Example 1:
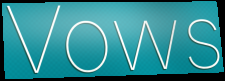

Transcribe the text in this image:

Vows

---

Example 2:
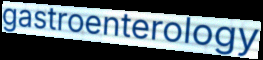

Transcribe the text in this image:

gastroenterology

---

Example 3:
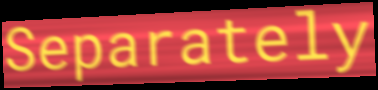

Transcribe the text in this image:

Separately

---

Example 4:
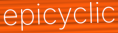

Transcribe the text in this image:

epicyclic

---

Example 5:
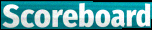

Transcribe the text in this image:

Scoreboard